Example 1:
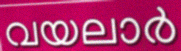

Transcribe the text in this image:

വയലാർ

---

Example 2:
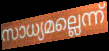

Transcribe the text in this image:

സാധ്യമല്ലെന്ന്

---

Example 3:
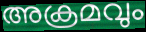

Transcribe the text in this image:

അക്രമവും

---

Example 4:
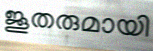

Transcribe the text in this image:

ജൂതരുമായി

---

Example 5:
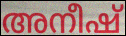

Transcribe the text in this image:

അനീഷ്